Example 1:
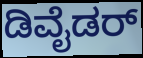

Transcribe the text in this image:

ಡಿವೈಡರ್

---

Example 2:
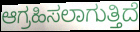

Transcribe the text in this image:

ಆಗ್ರಹಿಸಲಾಗುತ್ತಿದೆ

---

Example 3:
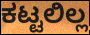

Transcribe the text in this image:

ಕಟ್ಟಲಿಲ್ಲ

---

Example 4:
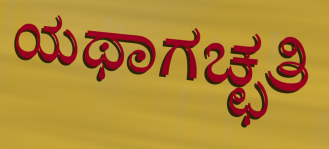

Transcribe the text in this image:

ಯಥಾಗಚ್ಛತಿ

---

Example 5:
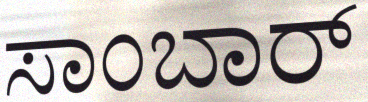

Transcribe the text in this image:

ಸಾಂಬಾರ್